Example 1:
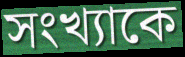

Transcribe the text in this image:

সংখ্যাকে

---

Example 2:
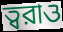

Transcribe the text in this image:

ত্বরাও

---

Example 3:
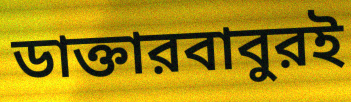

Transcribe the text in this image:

ডাক্তারবাবুরই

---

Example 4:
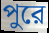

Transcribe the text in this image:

পুরে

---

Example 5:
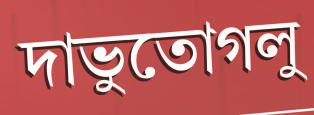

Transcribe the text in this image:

দাভুতোগলু